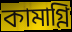
কামাগ্নি